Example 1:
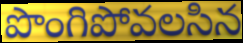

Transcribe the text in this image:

పొంగిపోవలసిన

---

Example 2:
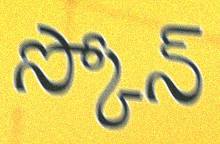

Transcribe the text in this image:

స్కోన్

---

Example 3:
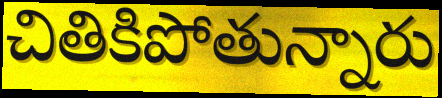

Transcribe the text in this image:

చితికిపోతున్నారు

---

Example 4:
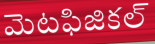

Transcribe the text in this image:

మెటఫిజికల్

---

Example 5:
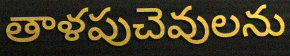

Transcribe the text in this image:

తాళపుచెవులను